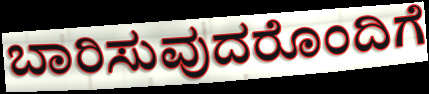
ಬಾರಿಸುವುದರೊಂದಿಗೆ